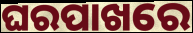
ଘରପାଖରେ